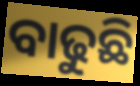
ବାଢୁଛି